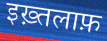
इख़्तलाफ़